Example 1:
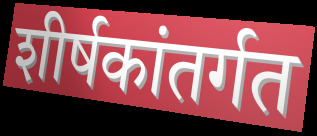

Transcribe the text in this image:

शीर्षकांतर्गत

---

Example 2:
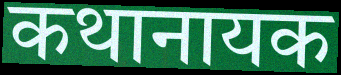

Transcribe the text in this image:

कथानायक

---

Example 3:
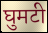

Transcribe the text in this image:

घुमटी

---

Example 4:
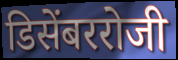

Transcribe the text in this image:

डिसेंबररोजी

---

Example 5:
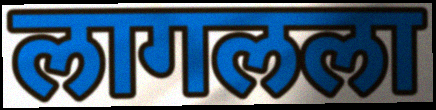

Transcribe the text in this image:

लागलला